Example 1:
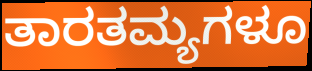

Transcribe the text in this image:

ತಾರತಮ್ಯಗಳೂ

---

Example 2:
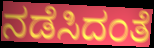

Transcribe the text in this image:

ನಡೆಸಿದಂತೆ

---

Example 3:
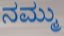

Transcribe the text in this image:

ನಮ್ಮು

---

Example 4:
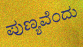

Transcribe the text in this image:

ಪುಣ್ಯವೆಂದು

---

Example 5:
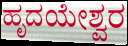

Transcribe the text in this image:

ಹೃದಯೇಶ್ವರ